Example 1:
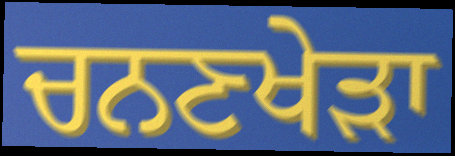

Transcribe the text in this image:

ਚਨਣਖੇੜਾ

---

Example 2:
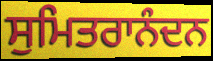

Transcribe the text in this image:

ਸੁਮਿਤਰਾਨੰਦਨ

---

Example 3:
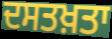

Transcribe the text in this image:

ਦਸਤਖ਼ਤਾ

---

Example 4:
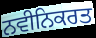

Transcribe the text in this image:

ਨਵੀਨਿਕਰਤ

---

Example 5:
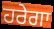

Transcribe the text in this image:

ਹਰੇਗਾ